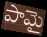
పామై